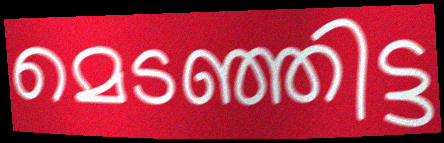
മെടഞ്ഞിട്ട